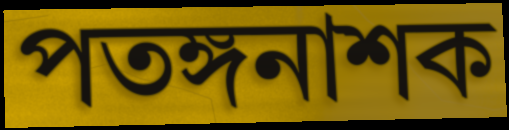
পতঙ্গনাশক